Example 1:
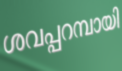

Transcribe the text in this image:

ശവപ്പറമ്പായി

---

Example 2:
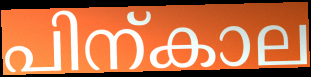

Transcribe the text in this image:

പിന്കാല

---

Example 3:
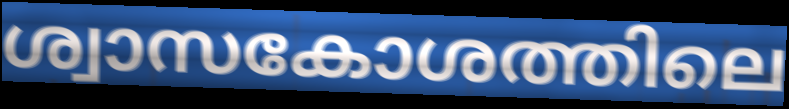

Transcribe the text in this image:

ശ്വാസകോശത്തിലെ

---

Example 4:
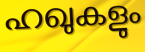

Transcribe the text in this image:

ഹഖുകളും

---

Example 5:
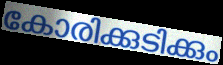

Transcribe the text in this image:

കോരിക്കുടിക്കും